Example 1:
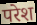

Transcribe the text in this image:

परेश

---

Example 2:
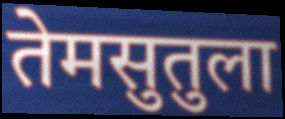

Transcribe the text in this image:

तेमसुतुला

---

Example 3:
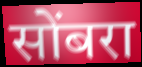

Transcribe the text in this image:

सोंबरा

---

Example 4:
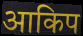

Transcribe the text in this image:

आकिप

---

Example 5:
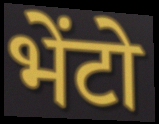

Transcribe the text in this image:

भेंटो